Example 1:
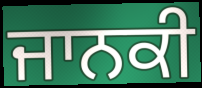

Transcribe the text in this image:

ਜਾਨਕੀ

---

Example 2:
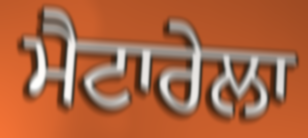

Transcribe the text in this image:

ਮੈਟਾਰੇਲਾ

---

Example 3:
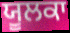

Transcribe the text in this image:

ਯੂਲਕਾ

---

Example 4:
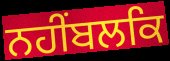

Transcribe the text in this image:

ਨਹੀਂਬਲਕਿ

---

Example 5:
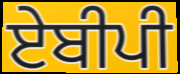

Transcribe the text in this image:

ਏਬੀਪੀ